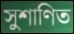
সুশাণিত